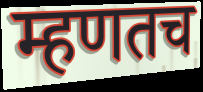
म्हणतच